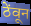
ठेंवून